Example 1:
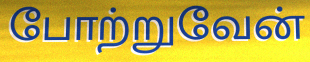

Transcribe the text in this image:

போற்றுவேன்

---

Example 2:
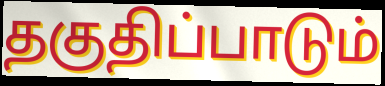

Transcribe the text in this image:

தகுதிப்பாடும்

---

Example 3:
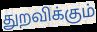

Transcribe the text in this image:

துறவிக்கும்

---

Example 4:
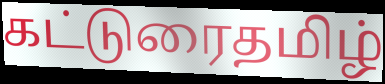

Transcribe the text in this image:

கட்டுரைதமிழ்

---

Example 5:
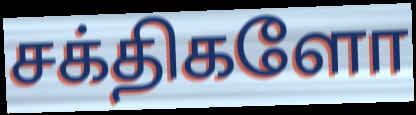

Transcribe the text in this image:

சக்திகளோ